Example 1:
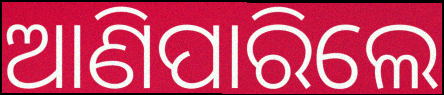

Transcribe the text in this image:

ଆଣିପାରିଲେ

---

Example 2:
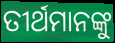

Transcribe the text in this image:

ତୀର୍ଥମାନଙ୍କୁ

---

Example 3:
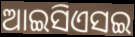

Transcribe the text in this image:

ଆଇସିଏସଇ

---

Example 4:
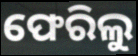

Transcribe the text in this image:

ଫେରିଲୁ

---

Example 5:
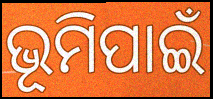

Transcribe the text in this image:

ଭୂମିପାଇଁ